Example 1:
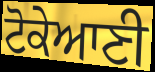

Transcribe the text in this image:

ਟੋਕੇਆਣੀ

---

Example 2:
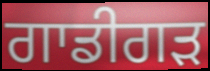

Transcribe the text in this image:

ਗਾਡੀਗੜ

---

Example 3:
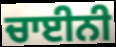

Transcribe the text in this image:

ਚਾਈਨੀ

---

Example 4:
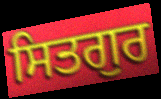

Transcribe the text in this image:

ਸਿਤਗੁਰ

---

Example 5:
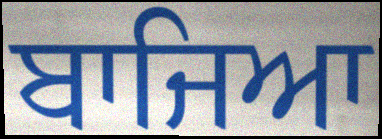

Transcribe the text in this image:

ਬਾਜਿਆ